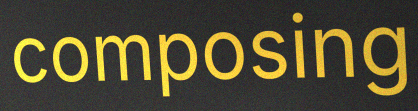
composing